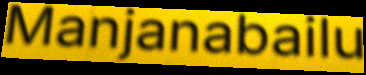
Manjanabailu